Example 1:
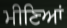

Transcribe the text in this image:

ਮੀਣਿਆਂ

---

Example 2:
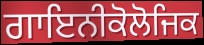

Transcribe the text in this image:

ਗਾਇਨੀਕੋਲੋਜਿਕ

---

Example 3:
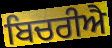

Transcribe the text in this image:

ਬਿਚਰੀਐ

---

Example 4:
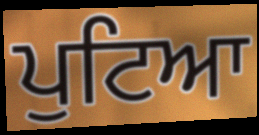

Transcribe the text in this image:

ਪੁਟਿਆ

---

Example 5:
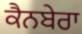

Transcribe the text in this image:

ਕੈਨਬੇਰਾ